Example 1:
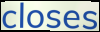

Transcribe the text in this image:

closes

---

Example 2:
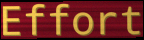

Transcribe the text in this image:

Effort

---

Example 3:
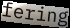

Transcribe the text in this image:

fering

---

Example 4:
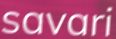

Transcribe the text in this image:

savari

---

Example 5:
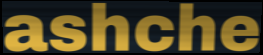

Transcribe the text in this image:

ashche